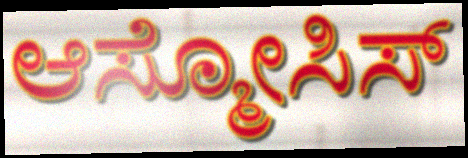
ಆಸ್ಮೋಸಿಸ್